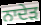
ਨਾਦੇੜ